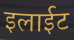
इलाईट